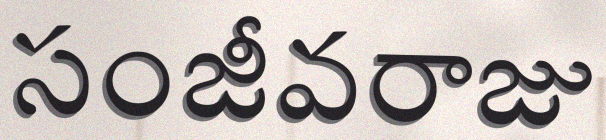
సంజీవరాజు